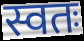
स्वतः